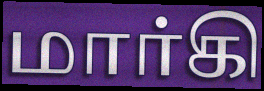
மார்கி